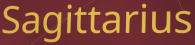
Sagittarius